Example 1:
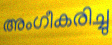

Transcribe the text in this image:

അംഗീകരിച്ചു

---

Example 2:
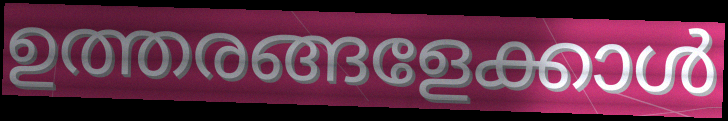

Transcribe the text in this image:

ഉത്തരങ്ങളേക്കാൾ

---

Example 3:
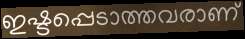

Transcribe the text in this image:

ഇഷ്ടപ്പെടാത്തവരാണ്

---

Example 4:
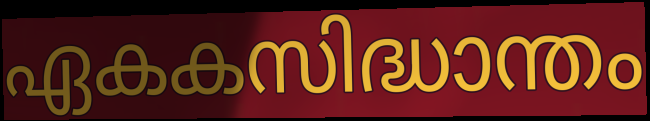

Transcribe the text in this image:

ഏകകസിദ്ധാന്തം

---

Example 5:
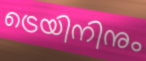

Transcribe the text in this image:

ട്രെയിനിനും